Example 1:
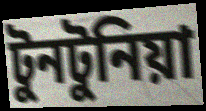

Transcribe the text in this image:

টুনটুনিয়া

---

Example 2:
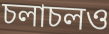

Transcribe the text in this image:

চলাচলও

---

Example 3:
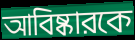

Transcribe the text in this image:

আবিষ্কারকে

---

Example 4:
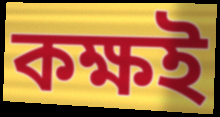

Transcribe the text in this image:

কক্ষই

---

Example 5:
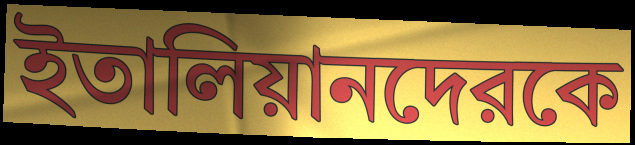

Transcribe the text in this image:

ইতালিয়ানদেরকে